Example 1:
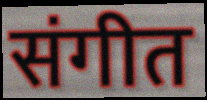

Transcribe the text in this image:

संगीत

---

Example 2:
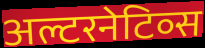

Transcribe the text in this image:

अल्टरनेटिव्स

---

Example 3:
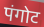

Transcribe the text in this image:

पंगोट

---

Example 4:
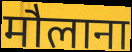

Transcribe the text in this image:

मौलाना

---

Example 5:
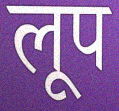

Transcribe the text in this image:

लूप